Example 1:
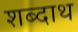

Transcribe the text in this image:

शब्दाथ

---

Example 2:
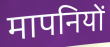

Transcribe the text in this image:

मापनियों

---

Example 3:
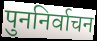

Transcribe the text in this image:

पुननिर्वाचन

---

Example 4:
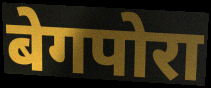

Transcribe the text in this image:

बेगपोरा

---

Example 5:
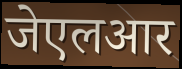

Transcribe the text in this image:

जेएलआर